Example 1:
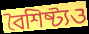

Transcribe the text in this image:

বৈশিষ্ট্যও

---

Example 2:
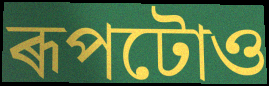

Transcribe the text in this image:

ৰূপটোও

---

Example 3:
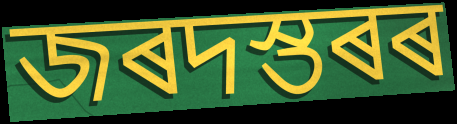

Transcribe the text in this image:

জৰদস্তৰৰ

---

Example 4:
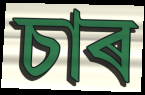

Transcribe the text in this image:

চাৰ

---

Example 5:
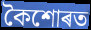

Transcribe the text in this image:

কৈশোৰত